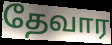
தேவார